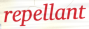
repellant